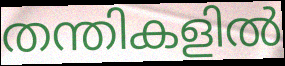
തന്തികളിൽ